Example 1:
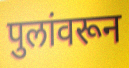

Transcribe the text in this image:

पुलांवरून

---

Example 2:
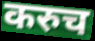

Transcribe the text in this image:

करुच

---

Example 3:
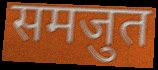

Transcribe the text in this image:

समजुत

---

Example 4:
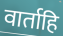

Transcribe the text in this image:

वार्ताहि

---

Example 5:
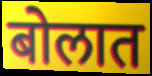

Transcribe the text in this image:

बोलात